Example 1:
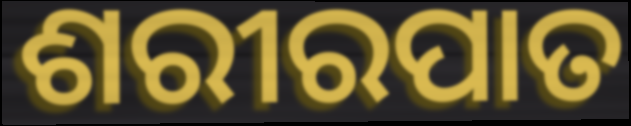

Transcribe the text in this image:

ଶରୀରପାତ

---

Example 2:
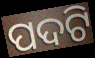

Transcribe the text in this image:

ପଦଟି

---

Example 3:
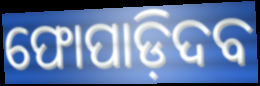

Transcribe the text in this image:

ଫୋପାଡ଼ିଦବ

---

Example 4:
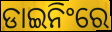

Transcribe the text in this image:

ଡାଇନିଂରେ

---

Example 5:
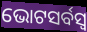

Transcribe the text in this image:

ଭୋଟସର୍ବସ୍ବ